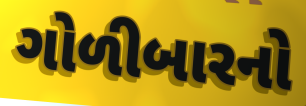
ગોળીબારનો